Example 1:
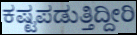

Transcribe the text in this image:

ಕಷ್ಟಪಡುತ್ತಿದ್ದೀರಿ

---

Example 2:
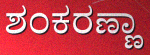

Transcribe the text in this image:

ಶಂಕರಣ್ಣಾ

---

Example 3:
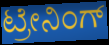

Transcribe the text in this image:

ಟ್ರೇನಿಂಗ್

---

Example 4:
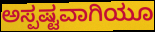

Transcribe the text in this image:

ಅಸ್ಪಷ್ಟವಾಗಿಯೂ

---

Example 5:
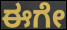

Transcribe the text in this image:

ಈಗೇ